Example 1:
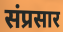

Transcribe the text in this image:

संप्रसार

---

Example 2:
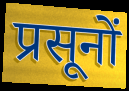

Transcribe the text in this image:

प्रसूनों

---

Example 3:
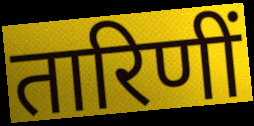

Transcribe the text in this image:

तारिणीं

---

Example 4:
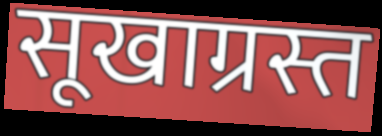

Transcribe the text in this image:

सूखाग्रस्‍त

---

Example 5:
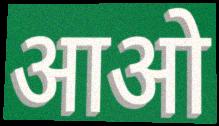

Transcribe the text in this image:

आओ